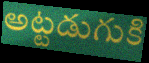
అట్టడుగుకి